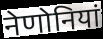
नेणोनियां